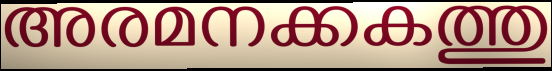
അരമനക്കകത്തു